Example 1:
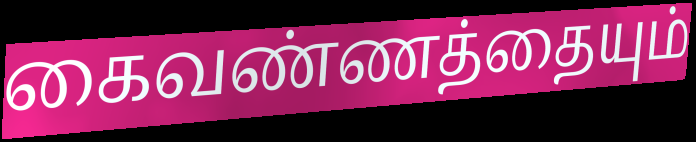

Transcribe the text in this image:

கைவண்ணத்தையும்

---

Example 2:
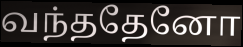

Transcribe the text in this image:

வந்ததேனோ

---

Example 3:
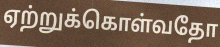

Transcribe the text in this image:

ஏற்றுக்கொள்வதோ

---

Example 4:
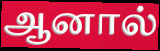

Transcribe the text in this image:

ஆனால்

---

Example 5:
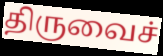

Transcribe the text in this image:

திருவைச்